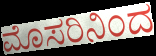
ಮೊಸರಿನಿಂದ